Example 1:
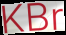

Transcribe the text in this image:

KBr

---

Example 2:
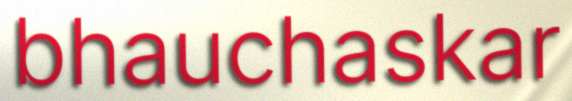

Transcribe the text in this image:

bhauchaskar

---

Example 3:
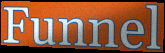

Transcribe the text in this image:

Funnel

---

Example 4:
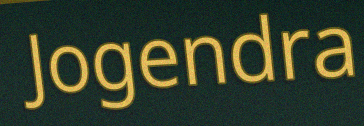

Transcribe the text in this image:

Jogendra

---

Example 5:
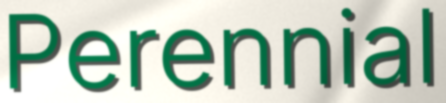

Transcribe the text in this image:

Perennial